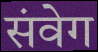
संवेग